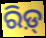
ରିଡ଼୍